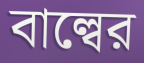
বাল্বের